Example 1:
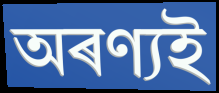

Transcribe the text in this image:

অৰণ্যই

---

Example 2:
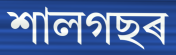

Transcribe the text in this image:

শালগছৰ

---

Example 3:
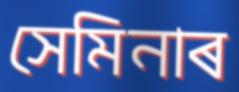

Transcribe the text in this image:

সেমিনাৰ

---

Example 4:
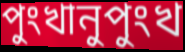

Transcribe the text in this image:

পুংখানুপুংখ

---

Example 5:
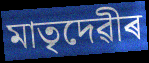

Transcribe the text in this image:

মাতৃদেৱীৰ